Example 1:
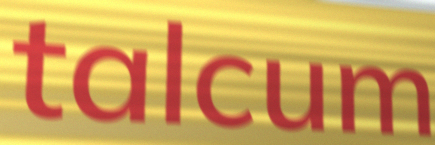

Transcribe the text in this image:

talcum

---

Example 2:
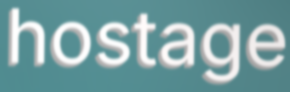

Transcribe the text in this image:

hostage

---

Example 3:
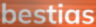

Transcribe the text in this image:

bestias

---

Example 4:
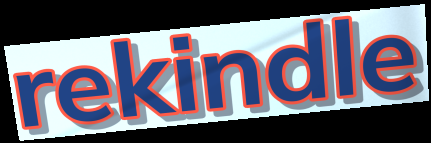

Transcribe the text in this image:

rekindle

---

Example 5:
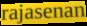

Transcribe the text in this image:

rajasenan